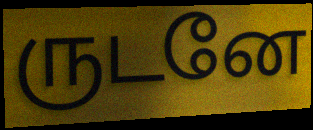
ருடனே